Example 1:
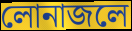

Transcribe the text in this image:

লোনাজলে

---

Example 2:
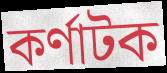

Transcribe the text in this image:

কর্ণাটক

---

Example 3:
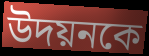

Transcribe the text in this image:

উদয়নকে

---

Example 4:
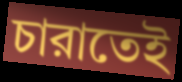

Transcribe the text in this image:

চারাতেই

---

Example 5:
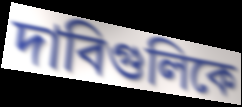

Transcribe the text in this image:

দাবিগুলিকে